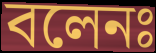
বলেনঃ